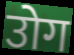
उोग